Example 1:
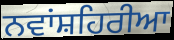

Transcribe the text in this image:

ਨਵਾਂਸ਼ਹਿਰੀਆ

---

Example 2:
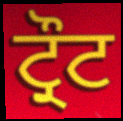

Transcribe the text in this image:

ਟ੍ਰੌਟ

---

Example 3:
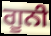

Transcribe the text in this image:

ਗੂਨੀ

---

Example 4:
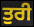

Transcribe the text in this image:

ਤੁਰੀ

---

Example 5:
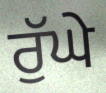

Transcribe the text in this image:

ਰੁੱਘੇ